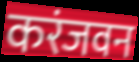
करंजवन